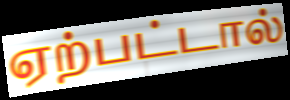
ஏற்பட்டால்